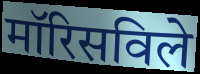
मॉरिसविले